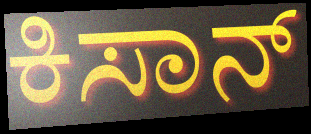
ಕಿಸಾನ್